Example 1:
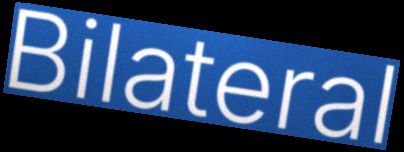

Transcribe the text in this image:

Bilateral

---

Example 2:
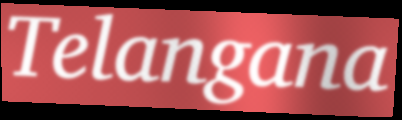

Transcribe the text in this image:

Telangana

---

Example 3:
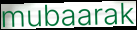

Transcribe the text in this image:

mubaarak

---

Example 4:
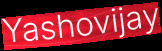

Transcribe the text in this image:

Yashovijay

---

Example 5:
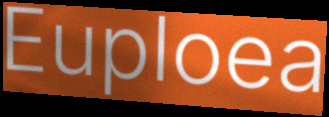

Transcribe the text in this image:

Euploea